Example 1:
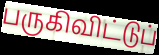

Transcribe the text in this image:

பருகிவிட்டுப்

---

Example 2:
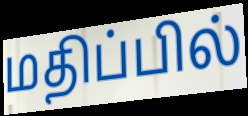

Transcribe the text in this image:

மதிப்பில்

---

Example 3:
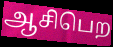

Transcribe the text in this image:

ஆசிபெற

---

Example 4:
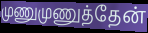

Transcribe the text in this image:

முணுமுணுத்தேன்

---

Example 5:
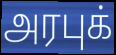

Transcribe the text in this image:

அரபுக்